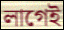
লাগেই